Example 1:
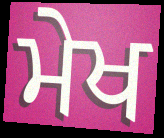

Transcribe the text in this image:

ਮੇਖ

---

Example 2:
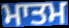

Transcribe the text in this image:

ਮਾਤਮ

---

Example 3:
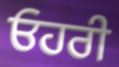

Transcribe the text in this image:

ਓਹਰੀ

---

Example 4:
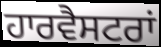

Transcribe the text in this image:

ਹਾਰਵੈਸਟਰਾਂ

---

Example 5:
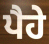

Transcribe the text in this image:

ਪੈਹੇ